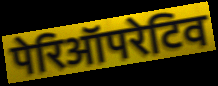
पेरिऑपरेटिव